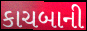
કાચબાની